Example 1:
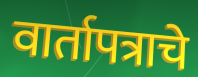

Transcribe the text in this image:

वार्तापत्राचे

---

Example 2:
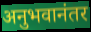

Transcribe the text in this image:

अनुभवानंतर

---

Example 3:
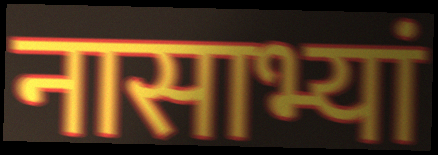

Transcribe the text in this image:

नासाभ्यां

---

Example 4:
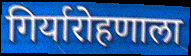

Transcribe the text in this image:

गिर्यारोहणाला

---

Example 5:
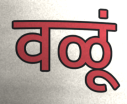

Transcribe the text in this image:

वळूं